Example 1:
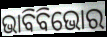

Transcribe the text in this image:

ଭାବିବିଭୋର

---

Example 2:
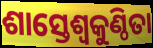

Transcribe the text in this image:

ଶାସ୍ତେଶ୍ବକୁଣ୍ଠିତା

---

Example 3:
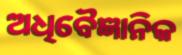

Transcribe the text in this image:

ଅଧିବୈଜ୍ଞାନିକ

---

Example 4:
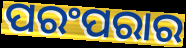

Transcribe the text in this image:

ପରଂପରାର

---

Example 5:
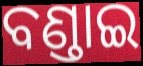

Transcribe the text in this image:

ବଣ୍ଡାଇ